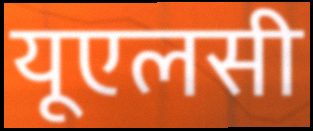
यूएलसी